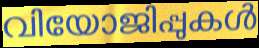
വിയോജിപ്പുകൾ